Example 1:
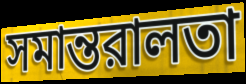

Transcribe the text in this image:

সমান্তরালতা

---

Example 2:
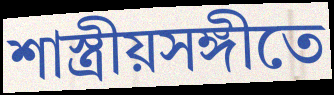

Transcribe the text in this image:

শাস্ত্রীয়সঙ্গীতে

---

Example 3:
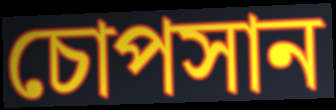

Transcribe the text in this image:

চোপসান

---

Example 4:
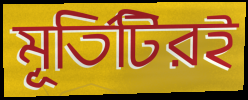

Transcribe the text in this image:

মূর্তিটিরই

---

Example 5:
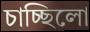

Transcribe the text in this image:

চাচ্ছিলো